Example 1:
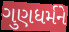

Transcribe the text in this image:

ગુણધર્મને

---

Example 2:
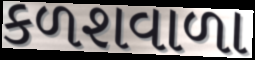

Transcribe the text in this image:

કળશવાળા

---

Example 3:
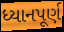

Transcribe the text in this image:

ધ્યાનપૂર્ણ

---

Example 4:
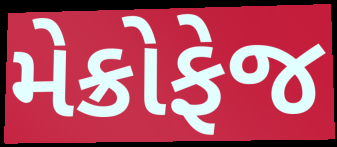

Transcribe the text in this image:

મેક્રોફેજ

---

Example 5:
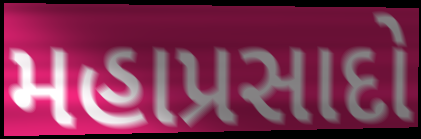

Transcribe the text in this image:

મહાપ્રસાદો